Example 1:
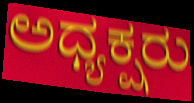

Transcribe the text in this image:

ಅಧ್ಯಕ್ಷರು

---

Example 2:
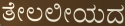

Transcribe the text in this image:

ತೇಲಲೀಯದ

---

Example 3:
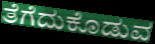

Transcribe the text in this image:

ತೆಗೆದುಕೊಡುವ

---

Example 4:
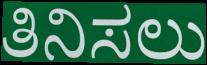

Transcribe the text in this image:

ತಿನಿಸಲು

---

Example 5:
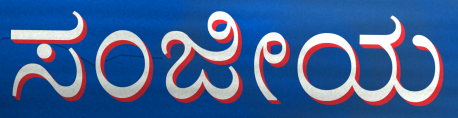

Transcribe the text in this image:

ಸಂಜೀಯ